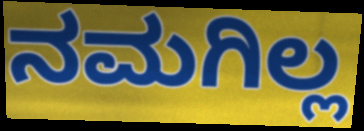
ನಮಗಿಲ್ಲ